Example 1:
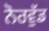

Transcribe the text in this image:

ਨੋਰਵੁੱਡ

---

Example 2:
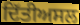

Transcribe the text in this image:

ਦਿੱਤੀਅਸਲ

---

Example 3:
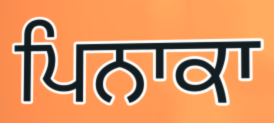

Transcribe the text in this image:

ਪਿਨਾਕਾ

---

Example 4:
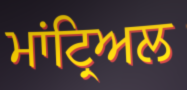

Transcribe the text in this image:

ਮਾਂਟ੍ਰਿਅਲ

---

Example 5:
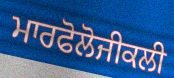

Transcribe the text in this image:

ਮਾਰਫੋਲੋਜੀਕਲੀ